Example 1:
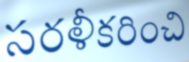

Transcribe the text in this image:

సరళీకరించి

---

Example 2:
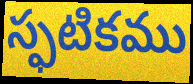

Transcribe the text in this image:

స్ఫటికము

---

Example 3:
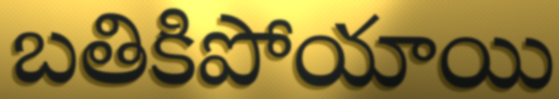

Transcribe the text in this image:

బతికిపోయాయి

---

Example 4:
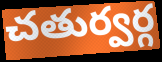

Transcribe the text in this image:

చతుర్వర్గ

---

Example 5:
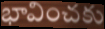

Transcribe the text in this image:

భావించకు